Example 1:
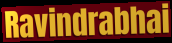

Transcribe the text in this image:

Ravindrabhai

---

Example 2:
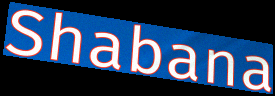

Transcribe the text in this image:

Shabana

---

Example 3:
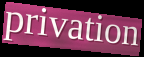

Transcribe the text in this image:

privation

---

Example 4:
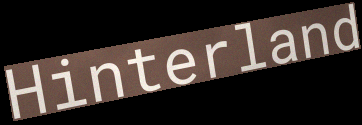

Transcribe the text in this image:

Hinterland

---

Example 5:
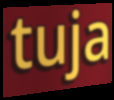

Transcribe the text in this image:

tuja